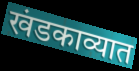
खंडकाव्यात